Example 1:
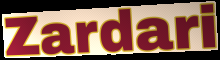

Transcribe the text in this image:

Zardari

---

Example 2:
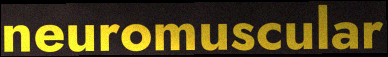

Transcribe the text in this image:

neuromuscular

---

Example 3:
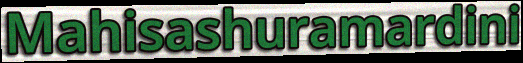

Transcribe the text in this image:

Mahisashuramardini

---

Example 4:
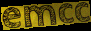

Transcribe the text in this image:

emcc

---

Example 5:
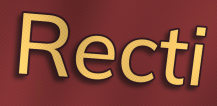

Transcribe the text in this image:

Recti